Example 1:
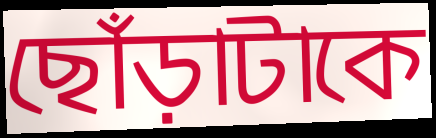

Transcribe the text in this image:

ছোঁড়াটাকে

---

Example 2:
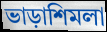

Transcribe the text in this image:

ভাড়াশিমলা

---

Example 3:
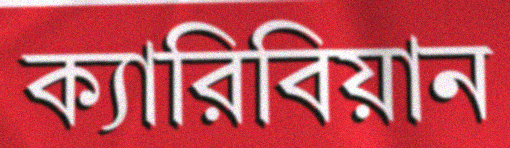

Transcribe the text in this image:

ক্যারিবিয়ান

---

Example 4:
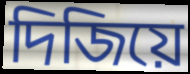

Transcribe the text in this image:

দিজিয়ে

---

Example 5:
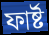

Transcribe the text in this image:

ফার্ষ্ট